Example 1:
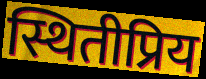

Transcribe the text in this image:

स्थितीप्रिय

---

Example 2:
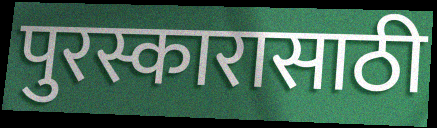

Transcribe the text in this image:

पुरस्कारासाठी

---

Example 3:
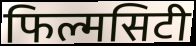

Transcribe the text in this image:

फिल्मसिटी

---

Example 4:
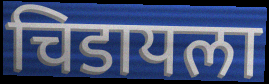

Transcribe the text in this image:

चिडायला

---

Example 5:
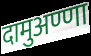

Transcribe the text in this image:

दामुअण्णा